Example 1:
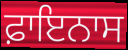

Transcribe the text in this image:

ਫ਼ਾਇਨਾਸ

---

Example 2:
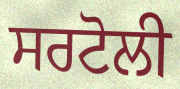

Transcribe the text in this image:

ਸਰਟੋਲੀ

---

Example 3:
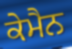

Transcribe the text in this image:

ਕੇਮੈਨ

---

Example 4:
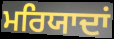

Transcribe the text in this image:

ਮਰਿਯਾਦਾਂ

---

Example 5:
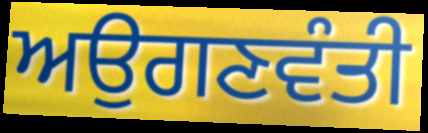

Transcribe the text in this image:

ਅਉਗਣਵੰਤੀ